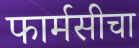
फार्मसीचा